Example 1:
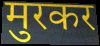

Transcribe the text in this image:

मुरकर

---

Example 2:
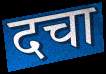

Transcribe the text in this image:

दचा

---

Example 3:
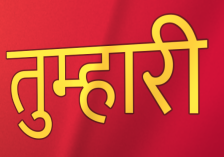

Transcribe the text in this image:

तुम्‍हारी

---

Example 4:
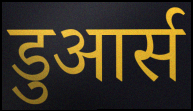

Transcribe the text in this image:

डुआर्स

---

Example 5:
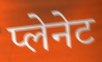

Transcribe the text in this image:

प्लेनेट